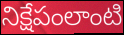
నిక్షేపంలాంటి